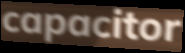
capacitor